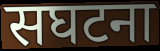
सघटना